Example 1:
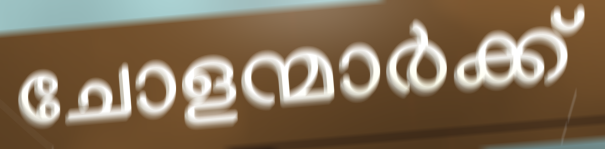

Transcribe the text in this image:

ചോളന്മാർക്ക്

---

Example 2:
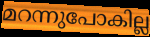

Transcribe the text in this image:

മറന്നുപോകില്ല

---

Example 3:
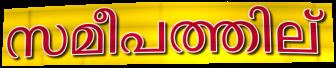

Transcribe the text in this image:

സമീപത്തില്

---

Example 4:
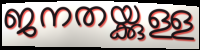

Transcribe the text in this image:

ജനതയ്ക്കുള്ള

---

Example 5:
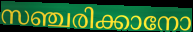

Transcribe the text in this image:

സഞ്ചരിക്കാനോ